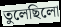
তুলেছিলো